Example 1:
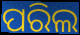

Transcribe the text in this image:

ପରିଲ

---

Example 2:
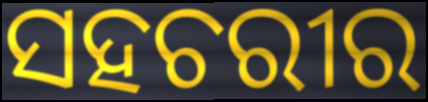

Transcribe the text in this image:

ସହଚରୀର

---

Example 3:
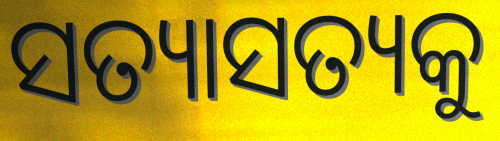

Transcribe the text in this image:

ସତ୍ୟାସତ୍ୟକୁ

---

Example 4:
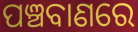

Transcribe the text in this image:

ପଞ୍ଚବାଣରେ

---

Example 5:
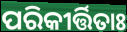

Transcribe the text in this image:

ପରିକୀର୍ତ୍ତିତାଃ